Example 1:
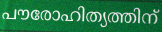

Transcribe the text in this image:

പൗരോഹിത്യത്തിന്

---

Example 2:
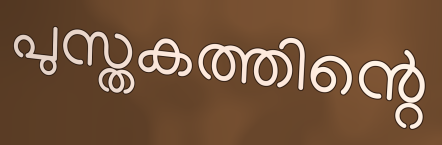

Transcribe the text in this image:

പുസ്തകത്തിന്റെ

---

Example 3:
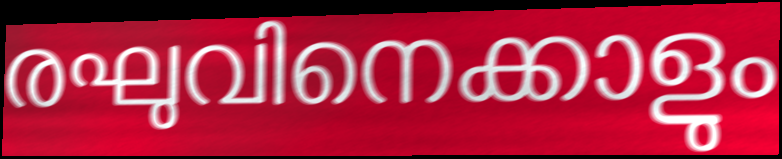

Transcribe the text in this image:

രഘുവിനെക്കാളും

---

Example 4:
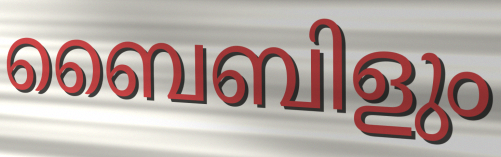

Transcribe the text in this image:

ബൈബിളും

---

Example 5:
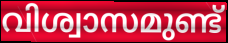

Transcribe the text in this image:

വിശ്വാസമുണ്ട്